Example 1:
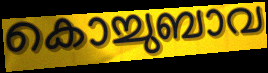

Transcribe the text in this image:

കൊച്ചുബാവ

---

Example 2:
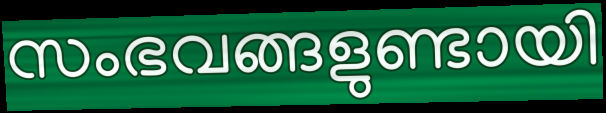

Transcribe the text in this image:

സംഭവങ്ങളുണ്ടായി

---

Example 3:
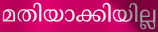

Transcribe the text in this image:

മതിയാക്കിയില്ല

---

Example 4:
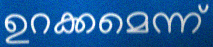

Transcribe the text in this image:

ഉറക്കമെന്ന്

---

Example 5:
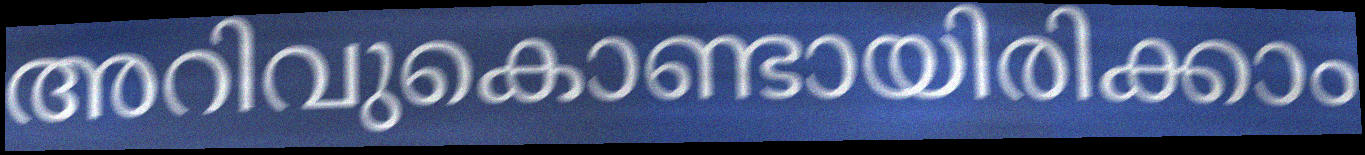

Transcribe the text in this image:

അറിവുകൊണ്ടായിരിക്കാം